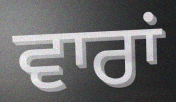
ਵਾਰਾਂ